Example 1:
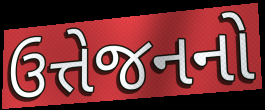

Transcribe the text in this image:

ઉત્તેજનનો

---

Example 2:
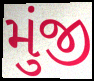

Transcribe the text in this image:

મુંજી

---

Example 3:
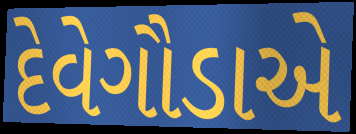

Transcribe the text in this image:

દેવેગૌડાએ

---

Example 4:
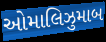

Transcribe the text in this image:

ઓમાલિઝુમાબ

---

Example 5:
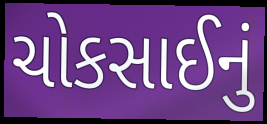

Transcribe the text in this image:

ચોકસાઈનું